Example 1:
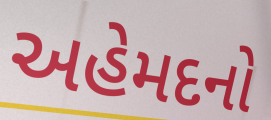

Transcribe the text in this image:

અહેમદનો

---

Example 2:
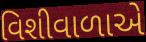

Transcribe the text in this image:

વિશીવાળાએ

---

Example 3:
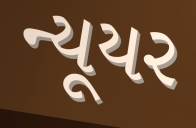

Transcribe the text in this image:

ન્યૂયર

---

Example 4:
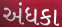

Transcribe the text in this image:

અંધકા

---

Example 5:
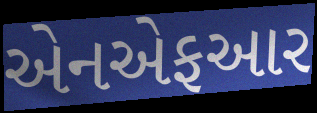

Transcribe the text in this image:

એનએફઆર